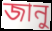
জানু